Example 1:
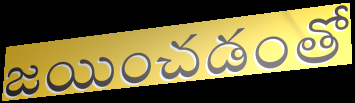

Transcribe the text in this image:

జయించడంతో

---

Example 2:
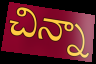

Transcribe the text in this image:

చిన్నా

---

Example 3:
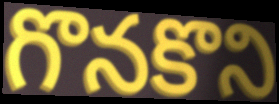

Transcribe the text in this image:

గొనకొని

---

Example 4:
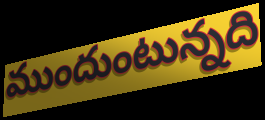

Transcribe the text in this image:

ముందుంటున్నది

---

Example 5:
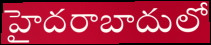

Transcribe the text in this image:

హైదరాబాదులో